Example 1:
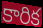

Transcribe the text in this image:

కారిక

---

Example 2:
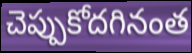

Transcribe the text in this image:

చెప్పుకోదగినంత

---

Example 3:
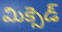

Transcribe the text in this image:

మిక్సెడ్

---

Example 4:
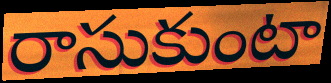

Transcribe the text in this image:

రాసుకుంటా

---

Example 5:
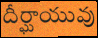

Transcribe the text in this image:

దీర్ఘాయువు